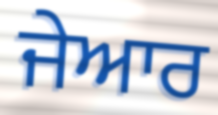
ਜੇਆਰ